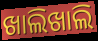
ଖାଲିଖାଲି